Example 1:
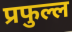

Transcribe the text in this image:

प्रफुल्ल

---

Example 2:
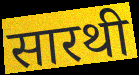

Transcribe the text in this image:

सारथी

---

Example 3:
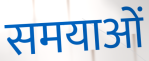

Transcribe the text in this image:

समयाओं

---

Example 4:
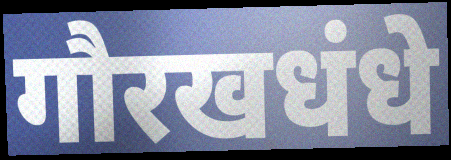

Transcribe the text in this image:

गौरखधंधे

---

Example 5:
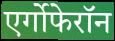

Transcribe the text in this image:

एर्गोफेरॉन